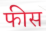
फीस